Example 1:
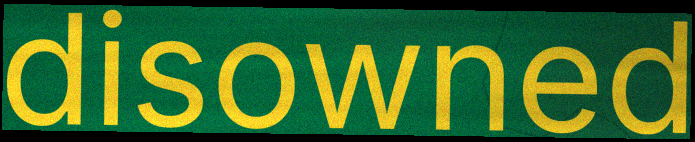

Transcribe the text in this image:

disowned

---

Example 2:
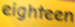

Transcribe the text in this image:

eighteen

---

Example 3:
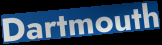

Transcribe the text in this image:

Dartmouth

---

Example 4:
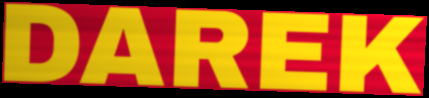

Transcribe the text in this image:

DAREK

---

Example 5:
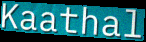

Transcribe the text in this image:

Kaathal